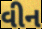
વીન